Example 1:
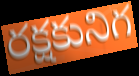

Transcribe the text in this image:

రక్షకునిగ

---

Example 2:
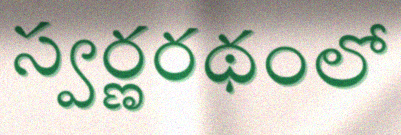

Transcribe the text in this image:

స్వర్ణరథంలో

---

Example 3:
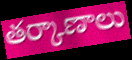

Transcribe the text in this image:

తర్కాణాలు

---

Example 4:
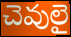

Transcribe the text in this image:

చెవులై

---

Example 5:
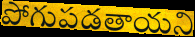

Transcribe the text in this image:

పోగుపడతాయని